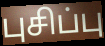
புசிப்பு